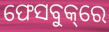
ଫେସବୁକ୍‌ରେ